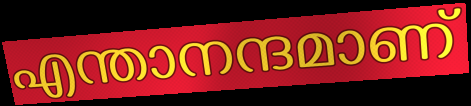
എന്താനന്ദമാണ്